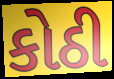
કોઠી